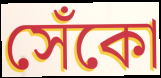
সেঁকো